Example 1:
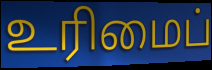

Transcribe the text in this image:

உரிமைப்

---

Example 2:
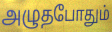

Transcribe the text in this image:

அழுதபோதும்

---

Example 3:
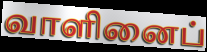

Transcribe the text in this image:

வாளினைப்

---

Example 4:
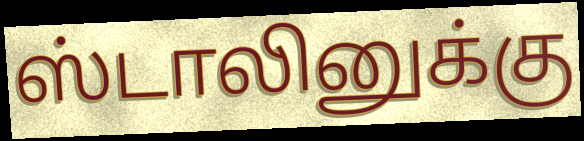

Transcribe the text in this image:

ஸ்டாலினுக்கு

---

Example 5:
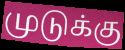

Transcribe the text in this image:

முடுக்கு